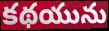
కథయును